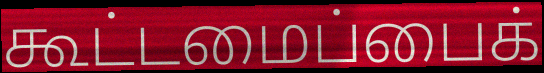
கூட்டமைப்பைக்